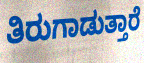
ತಿರುಗಾಡುತ್ತಾರೆ